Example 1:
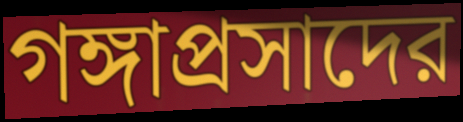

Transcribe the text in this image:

গঙ্গাপ্রসাদের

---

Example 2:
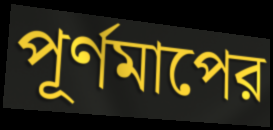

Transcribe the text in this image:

পূর্ণমাপের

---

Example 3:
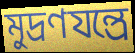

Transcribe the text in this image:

মুদ্রণযন্ত্রে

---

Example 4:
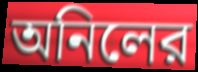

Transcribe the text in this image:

অনিলের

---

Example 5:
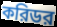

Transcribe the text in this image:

করিডর